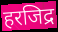
हरजिद्र